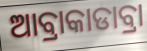
ଆବ୍ରାକାଡାବ୍ରା